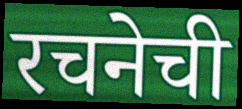
रचनेची